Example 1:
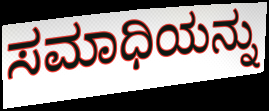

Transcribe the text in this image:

ಸಮಾಧಿಯನ್ನು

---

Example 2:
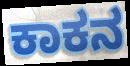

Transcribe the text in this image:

ಕಾಕನ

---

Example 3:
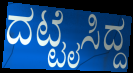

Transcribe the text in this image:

ದಟ್ಟೈಸಿದ್ದ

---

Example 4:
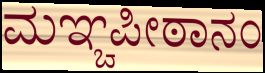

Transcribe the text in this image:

ಮಞ್ಚಪೀಠಾನಂ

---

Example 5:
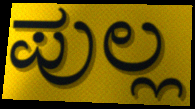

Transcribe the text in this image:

ಪುಲ್ಲ